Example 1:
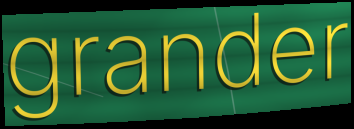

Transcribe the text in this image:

grander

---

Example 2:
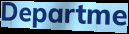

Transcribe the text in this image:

Departme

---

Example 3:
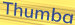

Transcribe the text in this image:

Thumba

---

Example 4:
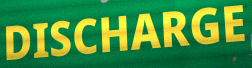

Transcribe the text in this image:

DISCHARGE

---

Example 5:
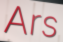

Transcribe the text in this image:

Ars